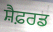
ਸ਼ੈਫ਼ਰਡ